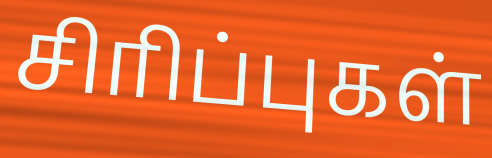
சிரிப்புகள்